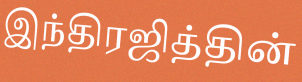
இந்திரஜித்தின்